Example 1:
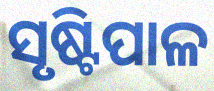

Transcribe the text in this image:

ସୃଷ୍ଟିପାଳ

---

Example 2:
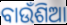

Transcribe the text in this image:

ବାଉଁଶିଆ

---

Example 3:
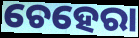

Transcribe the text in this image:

ଚେହେରା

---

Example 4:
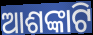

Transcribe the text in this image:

ଆଶଙ୍କାଟି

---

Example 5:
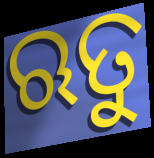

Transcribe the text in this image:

ଋତୁ